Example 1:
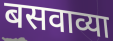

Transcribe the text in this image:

बसवाव्या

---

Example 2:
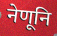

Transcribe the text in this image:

नेणूनि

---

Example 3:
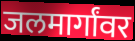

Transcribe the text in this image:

जलमार्गांवर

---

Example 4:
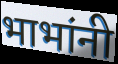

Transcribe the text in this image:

भाभांनी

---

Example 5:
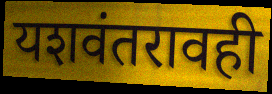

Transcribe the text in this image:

यशवंतरावही